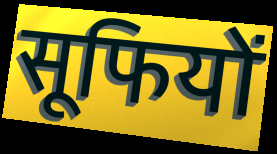
सूफियों